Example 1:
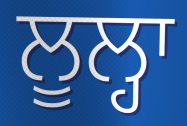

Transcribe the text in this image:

ਲੂਲ੍ਹਾ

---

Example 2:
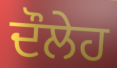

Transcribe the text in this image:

ਦੌਲੇਹ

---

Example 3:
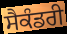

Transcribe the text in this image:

ਸੈਕੰਡਰੀ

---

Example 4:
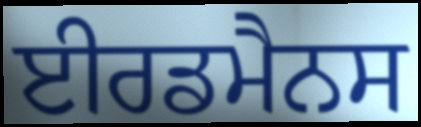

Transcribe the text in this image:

ਈਰਡਮੈਨਸ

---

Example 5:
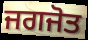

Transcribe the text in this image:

ਜਗਜੋਤ